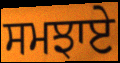
ਸਮਝਾਏ